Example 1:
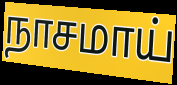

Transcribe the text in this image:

நாசமாய்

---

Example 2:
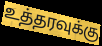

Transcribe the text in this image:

உத்தரவுக்கு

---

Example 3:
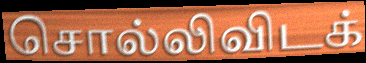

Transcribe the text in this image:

சொல்லிவிடக்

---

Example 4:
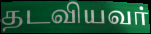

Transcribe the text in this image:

தடவியவர்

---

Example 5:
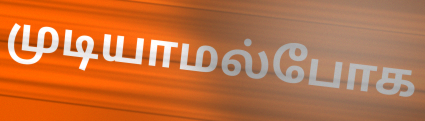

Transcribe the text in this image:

முடியாமல்போக